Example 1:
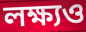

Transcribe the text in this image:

লক্ষ্যও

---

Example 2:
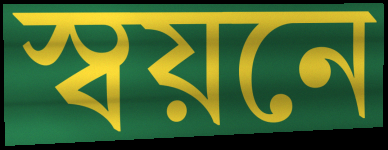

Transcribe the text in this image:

স্বয়নে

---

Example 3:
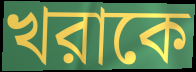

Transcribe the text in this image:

খরাকে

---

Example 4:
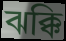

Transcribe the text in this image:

ঝক্কি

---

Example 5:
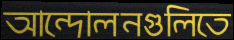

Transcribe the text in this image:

আন্দোলনগুলিতে